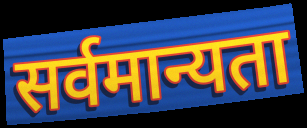
सर्वमान्यता